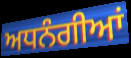
ਅਧਨੰਗੀਆਂ